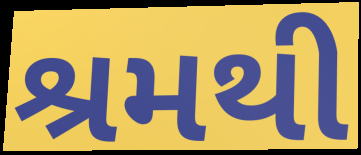
શ્રમથી